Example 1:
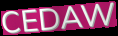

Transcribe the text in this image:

CEDAW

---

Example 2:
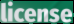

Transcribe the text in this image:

license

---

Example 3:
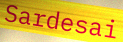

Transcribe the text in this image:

Sardesai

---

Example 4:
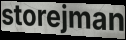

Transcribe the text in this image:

storejman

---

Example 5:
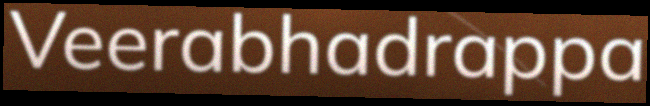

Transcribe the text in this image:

Veerabhadrappa